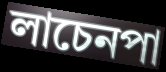
লাচেনপা